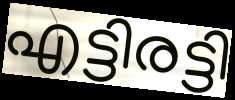
എട്ടിരട്ടി